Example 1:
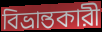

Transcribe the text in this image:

বিভ্রান্তকারী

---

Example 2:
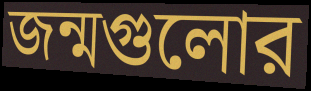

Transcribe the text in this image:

জন্মগুলোর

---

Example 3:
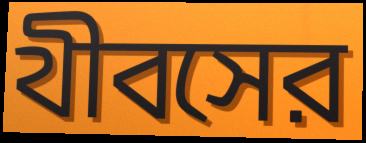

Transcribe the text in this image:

থীবসের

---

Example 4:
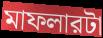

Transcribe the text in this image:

মাফলারটা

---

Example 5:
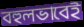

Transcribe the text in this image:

বহুলভাবেই